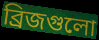
ব্রিজগুলো